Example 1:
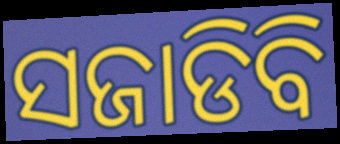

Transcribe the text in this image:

ସଜାଡିବି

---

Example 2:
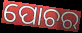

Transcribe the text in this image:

ପୋଚର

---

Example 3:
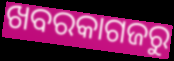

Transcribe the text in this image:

ଖବରକାଗଜରୁ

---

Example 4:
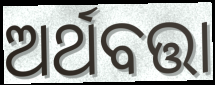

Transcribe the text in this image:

ଅର୍ଥବତ୍ତା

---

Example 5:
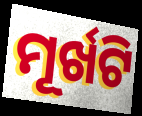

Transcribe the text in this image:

ମୂର୍ଖଟି